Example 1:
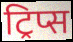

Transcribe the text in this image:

ट्रिप्स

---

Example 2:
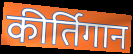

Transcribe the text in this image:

कीर्तिगान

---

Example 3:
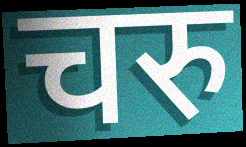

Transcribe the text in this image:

चरु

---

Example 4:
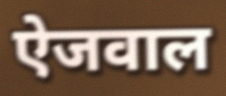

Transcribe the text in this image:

ऐजवाल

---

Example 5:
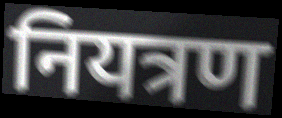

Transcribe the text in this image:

नियत्रण